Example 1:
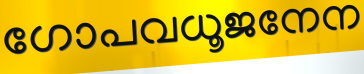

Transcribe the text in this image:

ഗോപവധൂജനേന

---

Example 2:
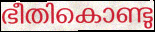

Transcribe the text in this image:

ഭീതികൊണ്ടു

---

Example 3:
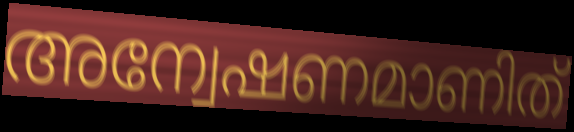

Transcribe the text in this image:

അന്വേഷണമാണിത്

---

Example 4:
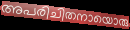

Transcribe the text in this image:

അപരിചിതനായൊരു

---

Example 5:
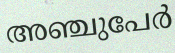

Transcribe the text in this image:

അഞ്ചുപേർ